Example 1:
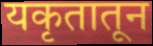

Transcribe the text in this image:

यकृतातून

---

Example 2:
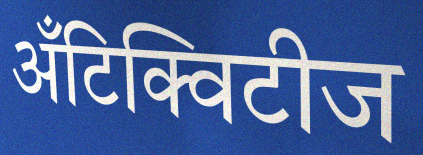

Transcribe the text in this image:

अँटिक्विटीज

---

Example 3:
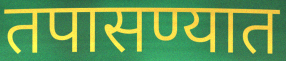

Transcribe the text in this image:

तपासण्यात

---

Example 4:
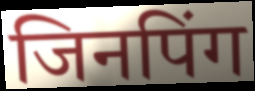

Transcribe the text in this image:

जिनपिंग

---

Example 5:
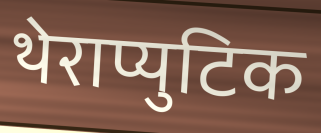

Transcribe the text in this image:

थेराप्युटिक